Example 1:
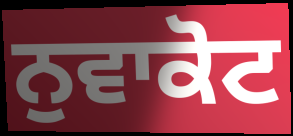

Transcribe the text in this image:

ਨੁਵਾਕੋਟ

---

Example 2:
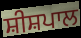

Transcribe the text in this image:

ਸ਼ੀਸ਼ਪਾਲ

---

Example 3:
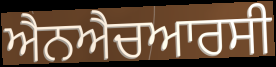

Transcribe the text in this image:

ਐਨਐਚਆਰਸੀ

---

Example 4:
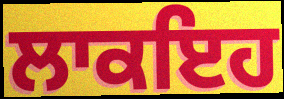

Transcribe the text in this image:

ਲਾਕਇਹ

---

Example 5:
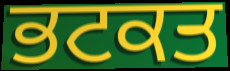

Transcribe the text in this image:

ਭਟਕਤ